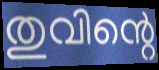
തുവിന്റെ